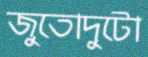
জুতোদুটো